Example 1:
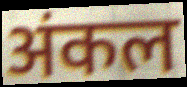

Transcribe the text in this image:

अंकल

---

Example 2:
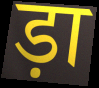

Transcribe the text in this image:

ड़ा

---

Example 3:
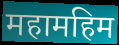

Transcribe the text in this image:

महामहिम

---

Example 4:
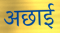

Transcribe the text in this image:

अछाई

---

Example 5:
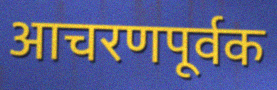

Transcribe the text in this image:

आचरणपूर्वक